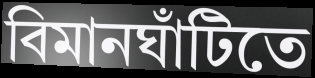
বিমানঘাঁটিতে